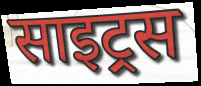
साइट्रस